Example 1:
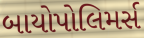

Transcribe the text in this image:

બાયોપોલિમર્સ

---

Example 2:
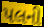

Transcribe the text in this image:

પલની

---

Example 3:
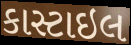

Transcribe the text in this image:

કાસ્ટાઇલ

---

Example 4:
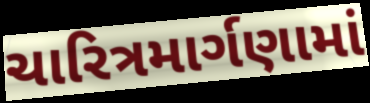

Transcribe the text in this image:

ચારિત્રમાર્ગણામાં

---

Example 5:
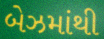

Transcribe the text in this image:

બેઝમાંથી